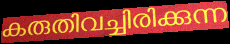
കരുതിവച്ചിരിക്കുന്ന